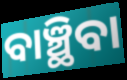
ବାଞ୍ଛିବା